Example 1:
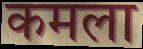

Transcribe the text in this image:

कमला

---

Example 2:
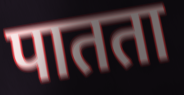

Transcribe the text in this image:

पातता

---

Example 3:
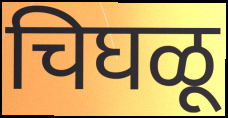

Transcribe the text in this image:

चिघळू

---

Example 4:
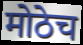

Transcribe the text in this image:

मोठेच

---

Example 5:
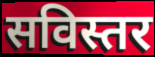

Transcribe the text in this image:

सविस्तर